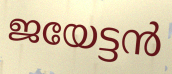
ജയേട്ടൻ